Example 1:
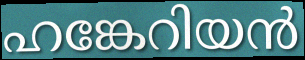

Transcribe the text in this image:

ഹങ്കേറിയൻ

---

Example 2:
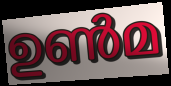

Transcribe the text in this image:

ഉൺമ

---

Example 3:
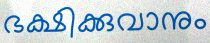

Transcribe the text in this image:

ഭക്ഷിക്കുവാനും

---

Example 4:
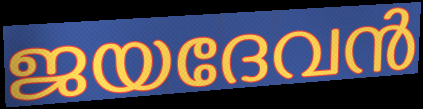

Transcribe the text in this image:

ജയദേവൻ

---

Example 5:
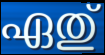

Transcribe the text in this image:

ഏതു്